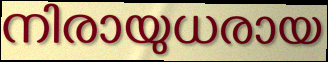
നിരായുധരായ